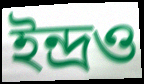
ইন্দ্রও